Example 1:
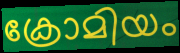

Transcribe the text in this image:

ക്രോമിയം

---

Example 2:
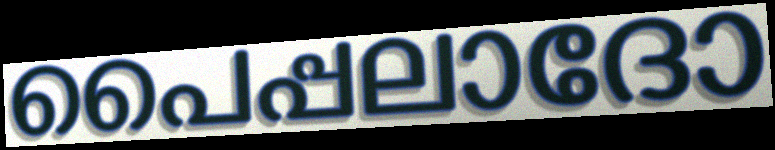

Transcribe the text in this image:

പൈപ്പലാദോ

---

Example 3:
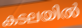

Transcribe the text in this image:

കടലയിൽ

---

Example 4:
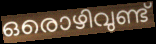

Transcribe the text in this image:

ഒരൊഴിവുണ്ട്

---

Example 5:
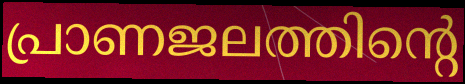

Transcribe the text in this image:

പ്രാണജലത്തിന്റെ